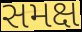
સમક્ષ